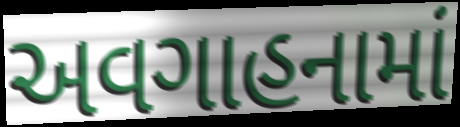
અવગાહનામાં